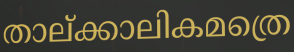
താല്ക്കാലികമത്രെ